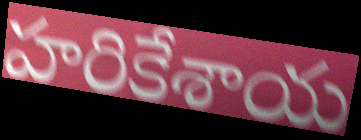
హరికేశాయ